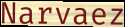
Narvaez